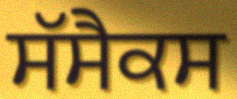
ਸੱਸੈਕਸ